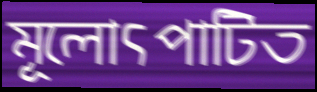
মূলোৎপাটিত